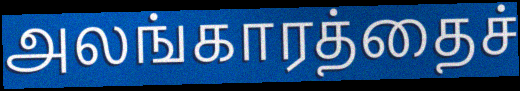
அலங்காரத்தைச்